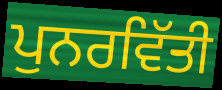
ਪੁਨਰਵਿੱਤੀ